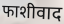
फाशीवाद